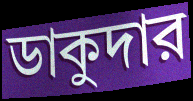
ডাকুদার